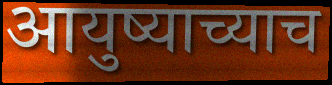
आयुष्याच्याच